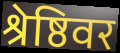
श्रेष्ठिवर